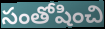
సంతోషించి